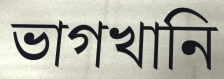
ভাগখানি